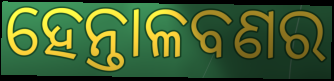
ହେନ୍ତାଳବଣର